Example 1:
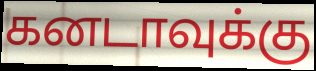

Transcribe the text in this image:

கனடாவுக்கு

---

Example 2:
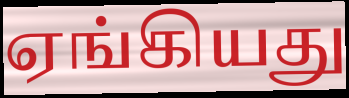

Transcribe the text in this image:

ஏங்கியது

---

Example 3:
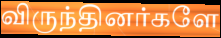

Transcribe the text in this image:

விருந்தினர்களே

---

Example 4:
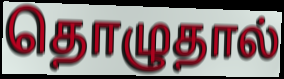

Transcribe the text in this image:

தொழுதால்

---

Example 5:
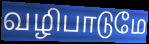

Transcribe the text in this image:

வழிபாடுமே